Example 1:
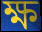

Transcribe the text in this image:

ক্ষ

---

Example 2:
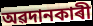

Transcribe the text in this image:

অৱদানকাৰী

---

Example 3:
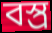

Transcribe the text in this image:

বস্ত্ৰ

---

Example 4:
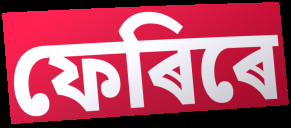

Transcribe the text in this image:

ফেৰিৰে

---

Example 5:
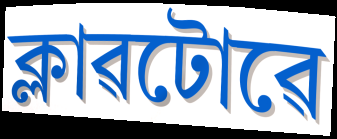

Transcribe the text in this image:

ক্লাৱটোৱে